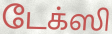
டேக்ஸி